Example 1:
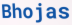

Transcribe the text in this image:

Bhojas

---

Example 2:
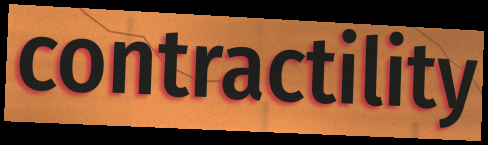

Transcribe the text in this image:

contractility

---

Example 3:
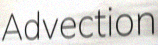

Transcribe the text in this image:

Advection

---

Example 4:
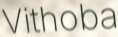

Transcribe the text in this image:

Vithoba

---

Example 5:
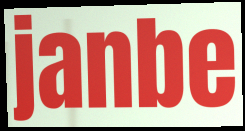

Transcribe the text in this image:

janbe